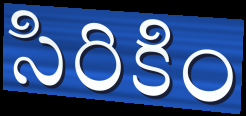
సిరికిం